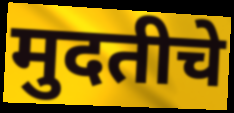
मुदतीचे